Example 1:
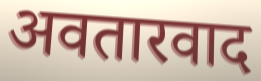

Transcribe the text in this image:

अवतारवाद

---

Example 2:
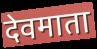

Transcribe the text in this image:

देवमाता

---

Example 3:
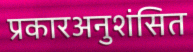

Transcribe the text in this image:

प्रकारअनुशंसित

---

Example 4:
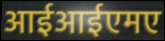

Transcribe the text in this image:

आईआईएमए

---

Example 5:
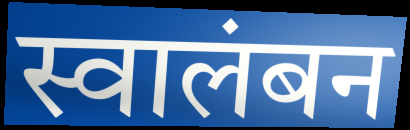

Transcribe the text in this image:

स्वालंबन